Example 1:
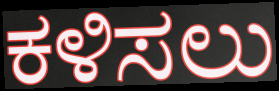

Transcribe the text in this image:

ಕಳಿಸಲು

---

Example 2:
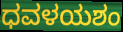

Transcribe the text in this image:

ಧವಳಯಶಂ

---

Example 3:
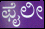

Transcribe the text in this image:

ಫೈಲೀ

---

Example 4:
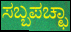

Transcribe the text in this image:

ಸಬ್ಬಪಚ್ಛಾ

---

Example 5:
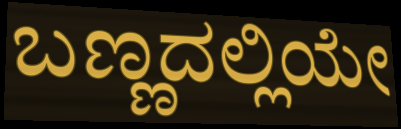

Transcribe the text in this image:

ಬಣ್ಣದಲ್ಲಿಯೇ